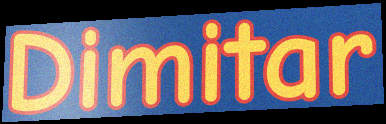
Dimitar